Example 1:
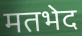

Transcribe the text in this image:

मतभेद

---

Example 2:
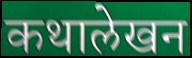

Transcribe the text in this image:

कथालेखन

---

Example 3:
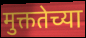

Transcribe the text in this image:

मुक्ततेच्या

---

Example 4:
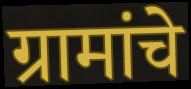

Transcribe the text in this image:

ग्रामांचे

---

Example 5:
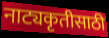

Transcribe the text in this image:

नाट्यकृतीसाठी